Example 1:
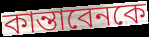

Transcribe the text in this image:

কান্তাবেনকে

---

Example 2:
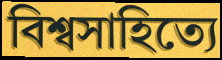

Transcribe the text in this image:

বিশ্বসাহিত্যে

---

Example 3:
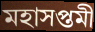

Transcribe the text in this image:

মহাসপ্তমী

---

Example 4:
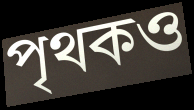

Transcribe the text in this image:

পৃথকও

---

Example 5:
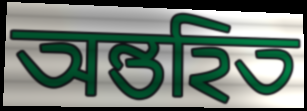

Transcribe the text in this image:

অন্তহিত